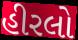
હીરલો